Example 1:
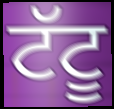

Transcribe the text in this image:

ਟੱਟੂ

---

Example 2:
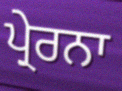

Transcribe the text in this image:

ਪ੍ਰੇਰਨਾ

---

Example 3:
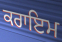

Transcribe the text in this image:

ਕਰਾਇਮ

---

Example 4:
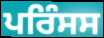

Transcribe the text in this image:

ਪਰਿੰਸਸ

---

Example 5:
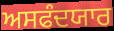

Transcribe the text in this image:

ਅਸਫੰਦਯਾਰ